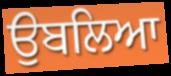
ਉਬਲਿਆ